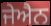
ਜੇਐਨ